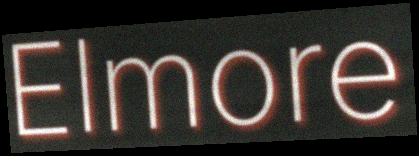
Elmore